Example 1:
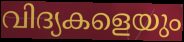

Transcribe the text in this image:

വിദ്യകളെയും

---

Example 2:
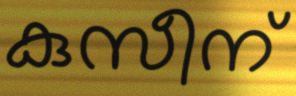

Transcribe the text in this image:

കുസീന്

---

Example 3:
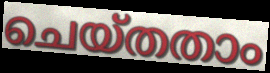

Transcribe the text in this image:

ചെയ്തതാം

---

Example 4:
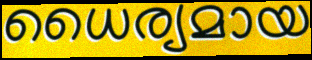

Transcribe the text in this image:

ധൈര്യമായ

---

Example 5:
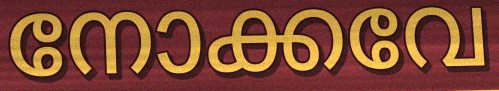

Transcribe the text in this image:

നോക്കവേ